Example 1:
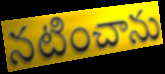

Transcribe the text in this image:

నటించాను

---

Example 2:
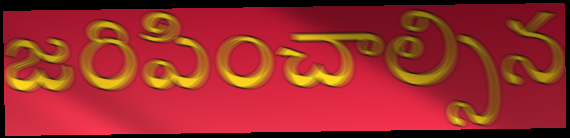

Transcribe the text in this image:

జరిపించాల్సిన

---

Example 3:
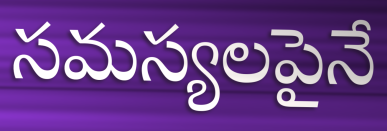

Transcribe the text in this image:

సమస్యలపైనే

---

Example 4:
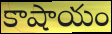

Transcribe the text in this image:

కాషాయం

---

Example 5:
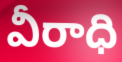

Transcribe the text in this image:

వీరాధి